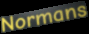
Normans